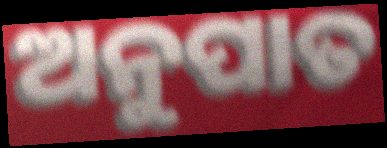
ଅନୁପାତ